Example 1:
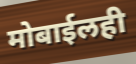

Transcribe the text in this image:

मोबाईलही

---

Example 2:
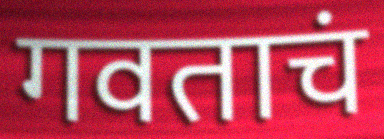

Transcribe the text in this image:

गवताचं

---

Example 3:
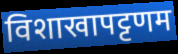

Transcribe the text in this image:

विशाखापट्टणम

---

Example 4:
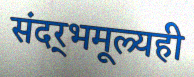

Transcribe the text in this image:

संदर्भमूल्यही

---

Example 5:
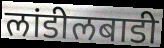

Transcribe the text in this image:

लांडीलबाडी